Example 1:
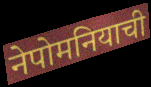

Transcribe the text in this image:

नेपोमनियाची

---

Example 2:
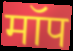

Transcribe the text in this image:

मॉप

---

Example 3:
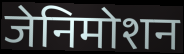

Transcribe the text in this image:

जेनिमोशन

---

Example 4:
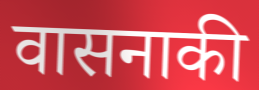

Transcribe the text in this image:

वासनाकी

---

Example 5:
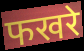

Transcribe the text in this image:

फखरे